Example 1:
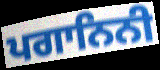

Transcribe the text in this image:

ਪਗਾਨਿਨੀ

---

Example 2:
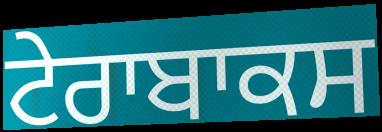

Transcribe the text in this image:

ਟੇਰਾਬਾਕਸ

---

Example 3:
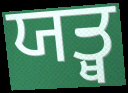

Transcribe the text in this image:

ਯਤ੍ਥ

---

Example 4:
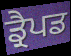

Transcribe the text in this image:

ਡ੍ਰੈਪਡ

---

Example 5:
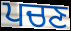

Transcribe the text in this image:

ਪਚਣ